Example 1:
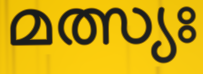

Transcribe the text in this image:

മത്സ്യഃ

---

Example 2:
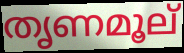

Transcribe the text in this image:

തൃണമൂല്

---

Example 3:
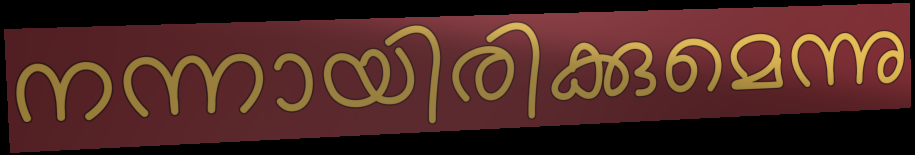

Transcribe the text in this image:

നന്നായിരിക്കുമെന്നു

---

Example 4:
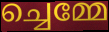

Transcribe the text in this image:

ച്ചെമ്മേ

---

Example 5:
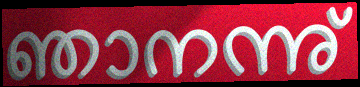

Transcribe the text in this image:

ഞാനന്നു്